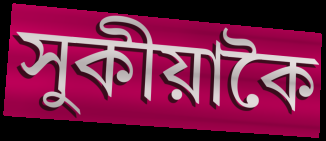
সুকীয়াকৈ